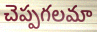
చెప్పగలమా